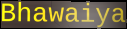
Bhawaiya